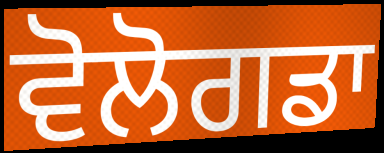
ਵੋਲੋਗਡਾ